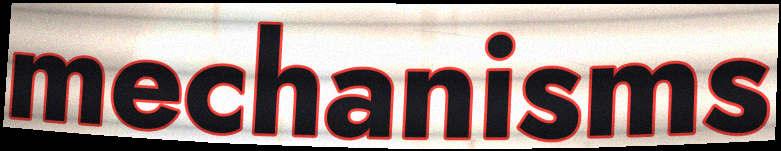
mechanisms